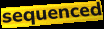
sequenced